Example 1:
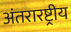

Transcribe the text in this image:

अंतरारष्ट्रीय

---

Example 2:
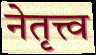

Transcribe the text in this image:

नेतृत्त्व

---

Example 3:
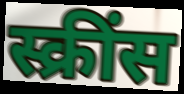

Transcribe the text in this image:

स्क्रींस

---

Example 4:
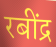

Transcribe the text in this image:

रबींद्र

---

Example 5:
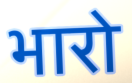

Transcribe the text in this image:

भारो